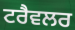
ਟਰੈਵਲਰ